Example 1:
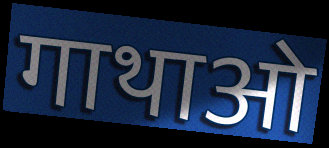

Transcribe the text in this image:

गाथाओ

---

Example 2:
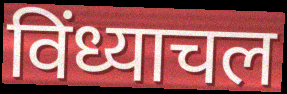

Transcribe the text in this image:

विंध्याचल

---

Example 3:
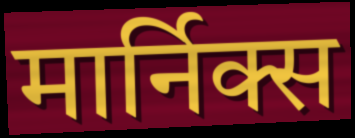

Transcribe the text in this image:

मार्निक्स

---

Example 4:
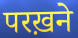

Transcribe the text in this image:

परख़ने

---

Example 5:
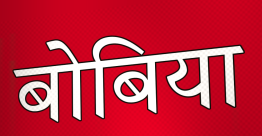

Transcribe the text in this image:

बोबिया